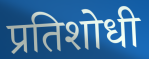
प्रतिशोधी